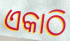
ଏକାଠି